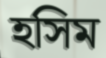
হসিম